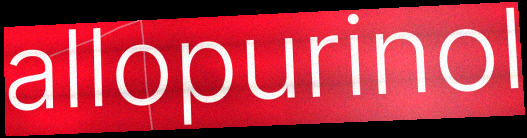
allopurinol